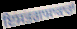
ਇਸਤਗਾਸਾਕਾਰਾਂ